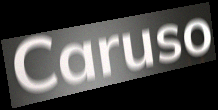
Caruso